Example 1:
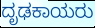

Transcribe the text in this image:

ದೃಢಕಾಯರು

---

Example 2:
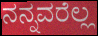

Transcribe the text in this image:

ನನ್ನವರೆಲ್ಲ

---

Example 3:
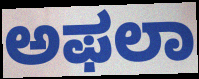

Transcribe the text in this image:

ಅಫಲಾ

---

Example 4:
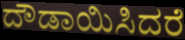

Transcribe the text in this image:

ದೌಡಾಯಿಸಿದರೆ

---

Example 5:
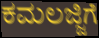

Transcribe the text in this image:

ಕಮಲಜ್ಜಿಗೆ